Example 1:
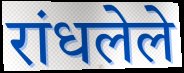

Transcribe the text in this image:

रांधलेले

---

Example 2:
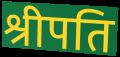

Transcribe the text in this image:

श्रीपति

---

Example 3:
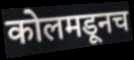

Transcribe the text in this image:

कोलमडूनच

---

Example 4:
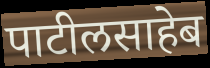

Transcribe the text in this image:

पाटीलसाहेब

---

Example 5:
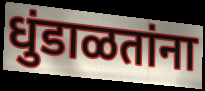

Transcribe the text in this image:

धुंडाळतांना